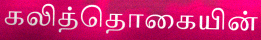
கலித்தொகையின்